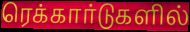
ரெக்கார்டுகளில்